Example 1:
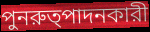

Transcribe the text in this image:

পুনরুত্পাদনকারী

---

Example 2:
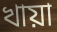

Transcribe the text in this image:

খায়া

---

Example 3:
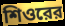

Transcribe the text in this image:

শিওরের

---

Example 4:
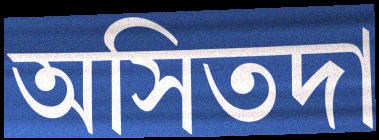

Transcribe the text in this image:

অসিতদা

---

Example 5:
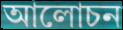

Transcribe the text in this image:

আলোচন